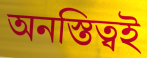
অনস্তিত্বই